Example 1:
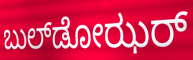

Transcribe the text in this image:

ಬುಲ್‌ಡೋಝರ್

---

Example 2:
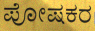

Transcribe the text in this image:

ಪೋಷಕರ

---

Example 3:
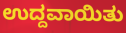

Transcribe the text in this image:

ಉದ್ದವಾಯಿತು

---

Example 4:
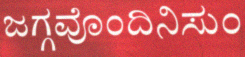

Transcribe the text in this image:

ಜಗ್ಗವೊಂದಿನಿಸುಂ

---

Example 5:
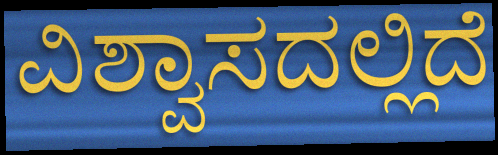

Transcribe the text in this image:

ವಿಶ್ವಾಸದಲ್ಲಿದೆ